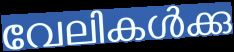
വേലികൾക്കു